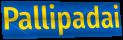
Pallipadai